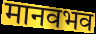
मानवभव